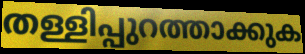
തള്ളിപ്പുറത്താക്കുക